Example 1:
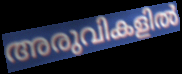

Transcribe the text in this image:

അരുവികളിൽ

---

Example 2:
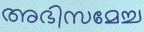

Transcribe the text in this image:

അഭിസമേച്ച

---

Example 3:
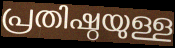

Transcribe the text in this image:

പ്രതിഷ്ഠയുള്ള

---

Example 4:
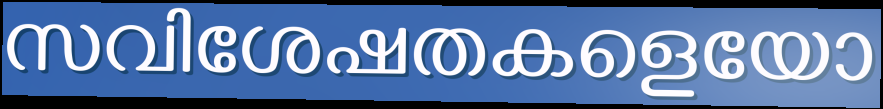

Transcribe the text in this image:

സവിശേഷതകളെയോ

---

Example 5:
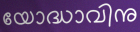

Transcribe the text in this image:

യോദ്ധാവിനു